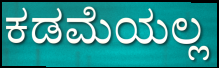
ಕಡಮೆಯಲ್ಲ